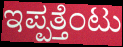
ಇಪ್ಪತ್ತೆಂಟು